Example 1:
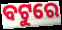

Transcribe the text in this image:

ବଟୁରେ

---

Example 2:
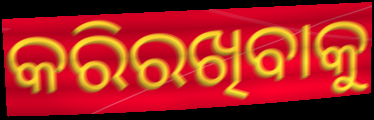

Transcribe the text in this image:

କରିରଖିବାକୁ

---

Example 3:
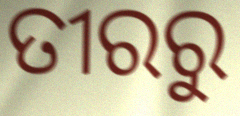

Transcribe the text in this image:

ତୀରରୁ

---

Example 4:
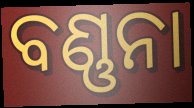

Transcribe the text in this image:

ବଣ୍ଣନା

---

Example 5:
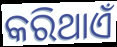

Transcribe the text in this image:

କରିଥାଏଁ